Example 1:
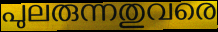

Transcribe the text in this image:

പുലരുന്നതുവരെ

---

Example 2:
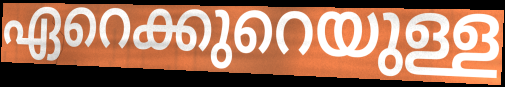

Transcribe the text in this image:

ഏറെക്കുറെയുള്ള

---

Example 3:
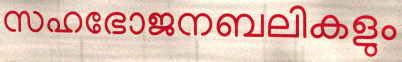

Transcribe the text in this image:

സഹഭോജനബലികളും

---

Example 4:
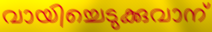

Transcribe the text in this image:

വായിച്ചെടുക്കുവാന്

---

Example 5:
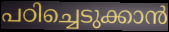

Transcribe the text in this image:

പഠിച്ചെടുക്കാൻ